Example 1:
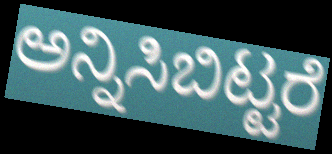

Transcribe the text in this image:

ಅನ್ನಿಸಿಬಿಟ್ಟರೆ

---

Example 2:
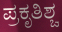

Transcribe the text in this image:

ಪ್ರಕೃತಿಶ್ಚ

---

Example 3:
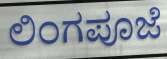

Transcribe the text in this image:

ಲಿಂಗಪೂಜೆ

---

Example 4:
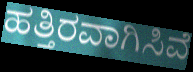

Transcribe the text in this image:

ಹತ್ತಿರವಾಗಿಸಿವೆ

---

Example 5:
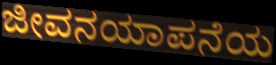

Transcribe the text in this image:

ಜೀವನಯಾಪನೆಯ